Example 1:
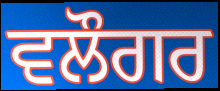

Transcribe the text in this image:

ਵਲੌਗਰ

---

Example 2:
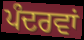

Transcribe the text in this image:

ਪੰਦਰਵਾਂ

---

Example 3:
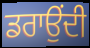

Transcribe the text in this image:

ਡਰਾਉਂਦੀ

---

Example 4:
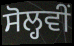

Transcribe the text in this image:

ਸੋਲ੍ਹਵੀਂ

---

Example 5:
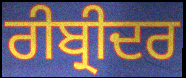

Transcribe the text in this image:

ਰੀਬ੍ਰੀਦਰ